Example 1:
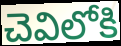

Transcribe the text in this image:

చెవిలోకి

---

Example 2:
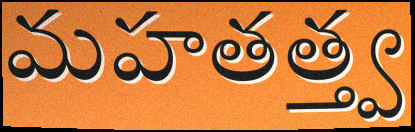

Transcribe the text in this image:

మహతత్త్వ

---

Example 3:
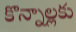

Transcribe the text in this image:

కొన్నాల్లకు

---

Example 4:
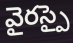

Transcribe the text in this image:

వైరస్పై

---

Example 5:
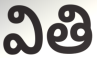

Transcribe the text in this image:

వితి